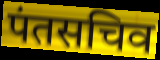
पंतसचिव